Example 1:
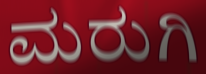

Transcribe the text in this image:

ಮರುಗಿ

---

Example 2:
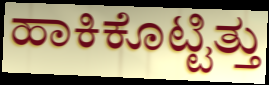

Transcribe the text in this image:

ಹಾಕಿಕೊಟ್ಟಿತ್ತು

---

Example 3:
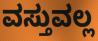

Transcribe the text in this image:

ವಸ್ತುವಲ್ಲ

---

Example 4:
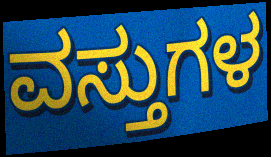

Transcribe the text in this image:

ವಸ್ತುಗಳ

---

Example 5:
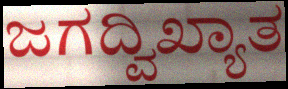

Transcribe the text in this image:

ಜಗದ್ವಿಖ್ಯಾತ